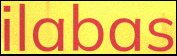
ilabas